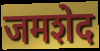
जमशेद